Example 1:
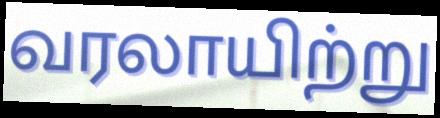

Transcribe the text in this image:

வரலாயிற்று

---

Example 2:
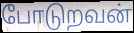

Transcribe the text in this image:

போடுறவன்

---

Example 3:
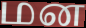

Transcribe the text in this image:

மன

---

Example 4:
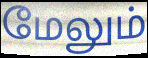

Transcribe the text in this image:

மேலும்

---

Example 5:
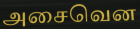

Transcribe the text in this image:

அசைவென